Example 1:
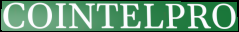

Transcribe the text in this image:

COINTELPRO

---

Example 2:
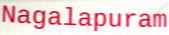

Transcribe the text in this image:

Nagalapuram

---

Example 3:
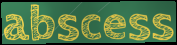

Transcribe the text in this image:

abscess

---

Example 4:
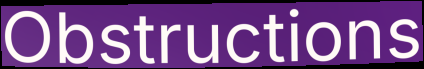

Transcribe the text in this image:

Obstructions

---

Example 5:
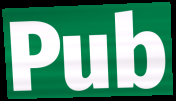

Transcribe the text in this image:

Pub